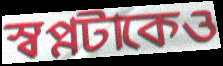
স্বপ্নটাকেও